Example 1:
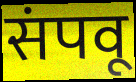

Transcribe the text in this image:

संपवू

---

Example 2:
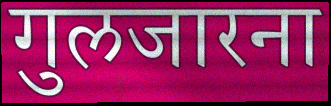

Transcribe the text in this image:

गुलजारना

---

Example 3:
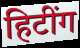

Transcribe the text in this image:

हिटींग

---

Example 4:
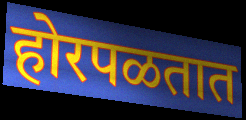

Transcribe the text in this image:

होरपळतात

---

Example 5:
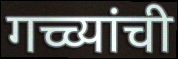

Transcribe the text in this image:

गच्च्यांची